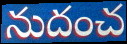
నుదంచ